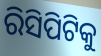
ରିସିପିଟିକୁ